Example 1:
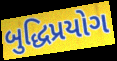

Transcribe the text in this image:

બુદ્ધિપ્રયોગ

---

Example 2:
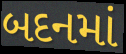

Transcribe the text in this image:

બદનમાં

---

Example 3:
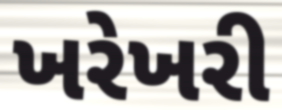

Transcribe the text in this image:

ખરેખરી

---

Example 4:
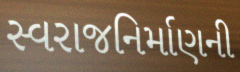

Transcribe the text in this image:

સ્વરાજનિર્માણની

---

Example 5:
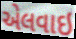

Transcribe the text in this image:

એલવાઇ